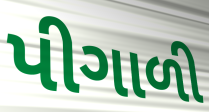
પીગાળી